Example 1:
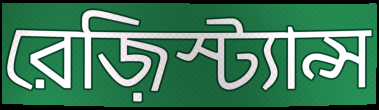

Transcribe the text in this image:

রেজ়িস্ট্যান্স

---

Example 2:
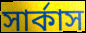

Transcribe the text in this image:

সার্কাস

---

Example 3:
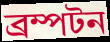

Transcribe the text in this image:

ব্রম্পটন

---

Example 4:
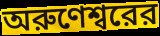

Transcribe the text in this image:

অরুণেশ্বরের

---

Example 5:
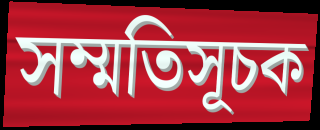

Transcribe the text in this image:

সম্মতিসূচক